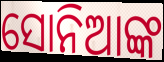
ସୋନିଆଙ୍କ